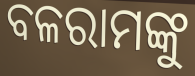
ବଳରାମଙ୍କୁ